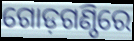
ଗୋଡ଼ଗଣ୍ଠିରେ